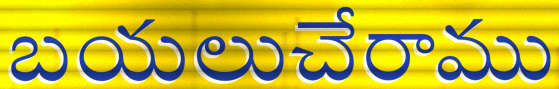
బయలుచేరాము